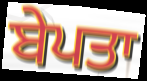
ਬੇਪਤਾ